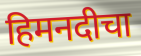
हिमनदीचा